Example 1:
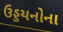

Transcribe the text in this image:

ઉડ્ડયનોના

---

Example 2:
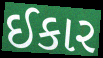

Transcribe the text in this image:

ઈકાર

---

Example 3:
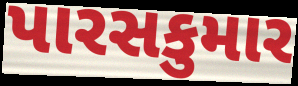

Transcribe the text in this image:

પારસકુમાર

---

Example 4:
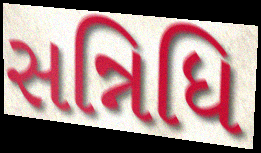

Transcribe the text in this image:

સન્નિધિ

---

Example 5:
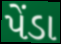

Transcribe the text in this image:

પેંડા